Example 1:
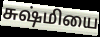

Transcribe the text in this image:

சுஷ்மியை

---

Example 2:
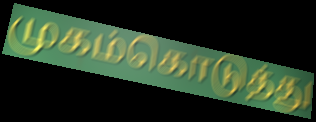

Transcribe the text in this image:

முகம்கொடுத்து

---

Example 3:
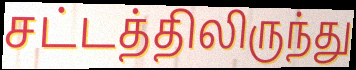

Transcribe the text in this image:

சட்டத்திலிருந்து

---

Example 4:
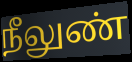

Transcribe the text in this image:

நீலுண்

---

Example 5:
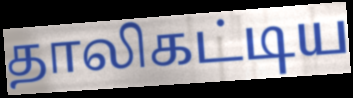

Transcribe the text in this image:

தாலிகட்டிய